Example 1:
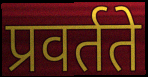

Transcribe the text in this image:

प्रवर्तते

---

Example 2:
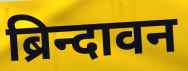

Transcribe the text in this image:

ब्रिन्दावन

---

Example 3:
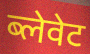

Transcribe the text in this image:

ब्लेवेट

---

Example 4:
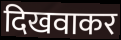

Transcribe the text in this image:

दिखवाकर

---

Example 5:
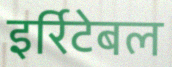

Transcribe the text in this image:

इर्रिटेबल